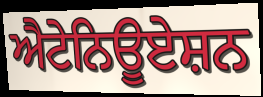
ਐਟੇਨਿਊਏਸ਼ਨ